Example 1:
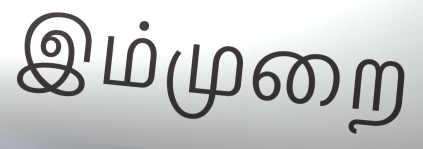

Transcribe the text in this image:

இம்முறை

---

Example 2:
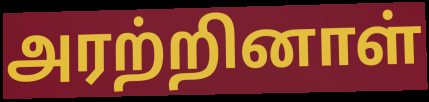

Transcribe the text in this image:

அரற்றினாள்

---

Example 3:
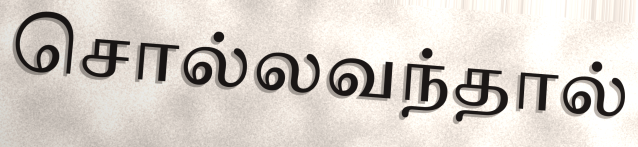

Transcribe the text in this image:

சொல்லவந்தால்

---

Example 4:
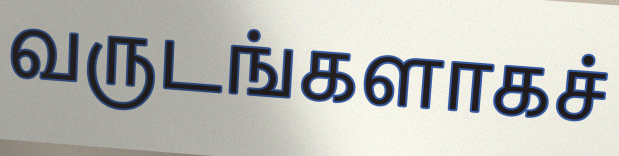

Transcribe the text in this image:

வருடங்களாகச்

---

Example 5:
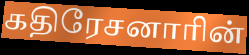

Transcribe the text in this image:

கதிரேசனாரின்